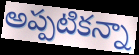
అప్పటికన్నా